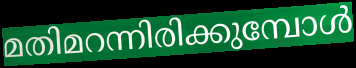
മതിമറന്നിരിക്കുമ്പോൾ